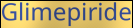
Glimepiride